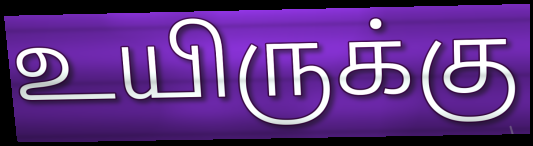
உயிருக்கு